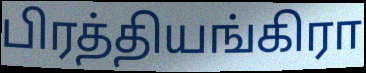
பிரத்தியங்கிரா